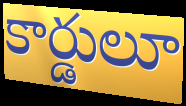
కార్డులూ